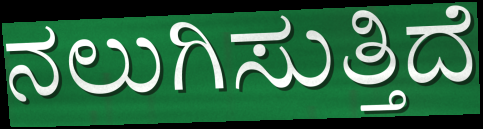
ನಲುಗಿಸುತ್ತಿದೆ